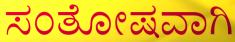
ಸಂತೋಷವಾಗಿ